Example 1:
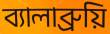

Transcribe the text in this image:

ব্যালাব্রুয়ি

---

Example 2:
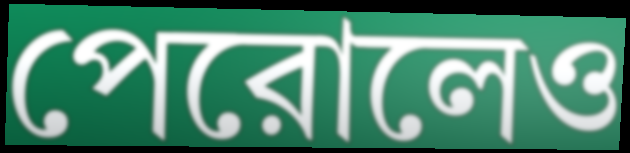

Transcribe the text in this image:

পেরোলেও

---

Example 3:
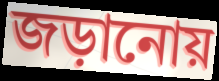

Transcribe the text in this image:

জড়ানোয়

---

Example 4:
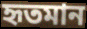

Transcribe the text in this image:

হৃতমান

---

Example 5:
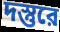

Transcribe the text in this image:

দস্তুরে